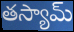
తస్యామ్